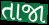
તાજા